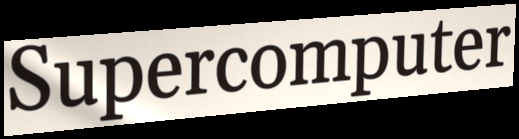
Supercomputer